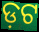
ଡ଼ଟ